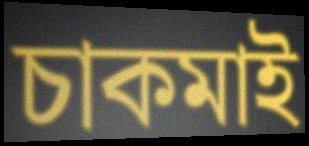
চাকমাই